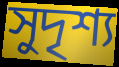
সুদৃশ্য